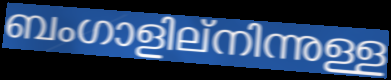
ബംഗാളില്നിന്നുള്ള